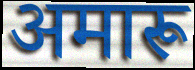
अमारू